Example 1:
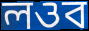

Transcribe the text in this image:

লওব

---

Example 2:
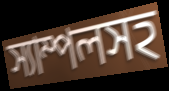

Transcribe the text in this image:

স্যাম্পলসহ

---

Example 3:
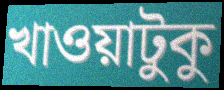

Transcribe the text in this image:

খাওয়াটুকু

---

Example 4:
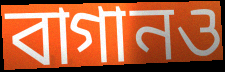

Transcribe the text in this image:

বাগানও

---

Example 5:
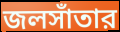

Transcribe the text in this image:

জলসাঁতার